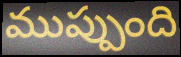
ముప్పుంది